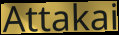
Attakai